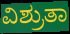
ವಿಶ್ರುತಾ